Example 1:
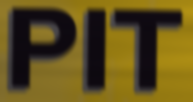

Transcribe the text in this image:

PIT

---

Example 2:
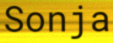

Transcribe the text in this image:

Sonja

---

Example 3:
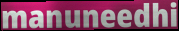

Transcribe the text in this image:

manuneedhi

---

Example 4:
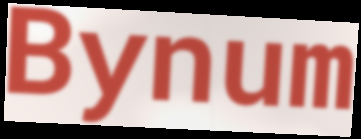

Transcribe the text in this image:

Bynum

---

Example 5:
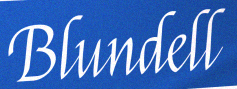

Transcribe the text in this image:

Blundell